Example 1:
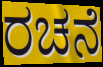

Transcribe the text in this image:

ರಚನೆ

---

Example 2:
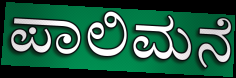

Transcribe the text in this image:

ಪಾಲಿಮನೆ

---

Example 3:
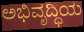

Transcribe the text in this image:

ಅಭಿವೃದ್ಧಿಯ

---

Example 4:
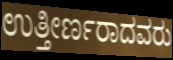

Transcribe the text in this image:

ಉತ್ತೀರ್ಣರಾದವರು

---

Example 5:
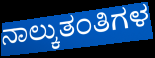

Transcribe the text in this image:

ನಾಲ್ಕುತಂತಿಗಳ